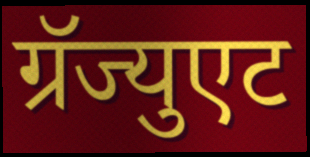
ग्रॅज्युएट